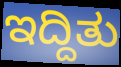
ಇದ್ದಿತು